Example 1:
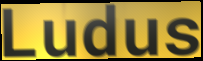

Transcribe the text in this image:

Ludus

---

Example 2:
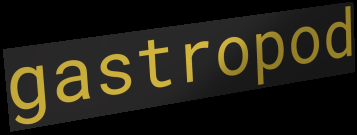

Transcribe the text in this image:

gastropod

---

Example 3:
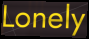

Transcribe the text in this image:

Lonely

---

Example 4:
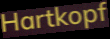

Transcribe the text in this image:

Hartkopf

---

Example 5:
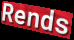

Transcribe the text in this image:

Rends